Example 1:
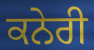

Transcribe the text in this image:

ਕਨੇਰੀ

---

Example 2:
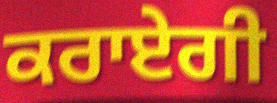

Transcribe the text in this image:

ਕਰਾਏਗੀ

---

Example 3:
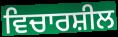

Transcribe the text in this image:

ਵਿਚਾਰਸ਼ੀਲ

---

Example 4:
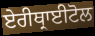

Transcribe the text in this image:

ਏਰੀਥ੍ਰਾਈਟੋਲ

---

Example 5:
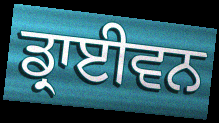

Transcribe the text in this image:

ਡ੍ਰਾਈਵਨ